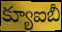
క్యూఐబీ